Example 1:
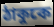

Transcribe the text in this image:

ঠাকুকে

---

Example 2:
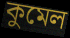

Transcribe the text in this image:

কুমেল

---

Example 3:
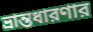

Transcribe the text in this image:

ভ্রান্তধারণার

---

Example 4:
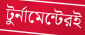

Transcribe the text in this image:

টুর্নামেন্টেরই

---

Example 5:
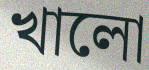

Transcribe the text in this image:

খালো